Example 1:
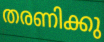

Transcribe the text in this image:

തരണിക്കു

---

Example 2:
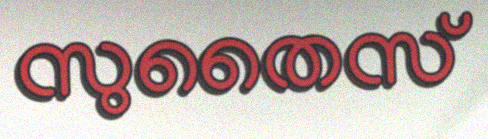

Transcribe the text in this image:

സുതൈസ്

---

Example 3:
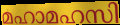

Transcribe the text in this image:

മഹാമഹസി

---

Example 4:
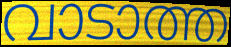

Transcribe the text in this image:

വാടാത്ത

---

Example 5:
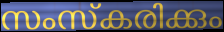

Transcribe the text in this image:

സംസ്‌കരിക്കും